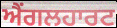
ਐਂਗਲਹਾਰਟ